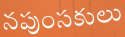
నపుంసకులు